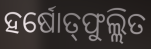
ହର୍ଷୋତ୍‌ଫୁଲ୍ଲିତ